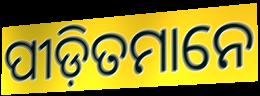
ପୀଡ଼ିତମାନେ